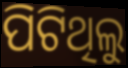
ପିଟିଥିଲୁ